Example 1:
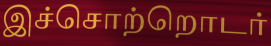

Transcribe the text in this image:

இச்சொற்றொடர்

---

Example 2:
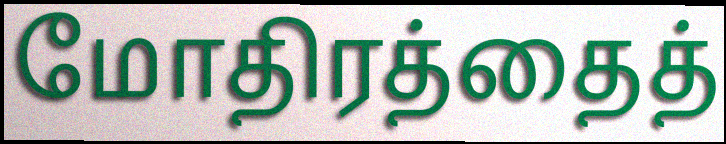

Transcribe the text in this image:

மோதிரத்தைத்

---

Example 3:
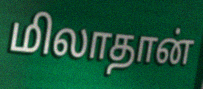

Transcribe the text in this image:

மிலாதான்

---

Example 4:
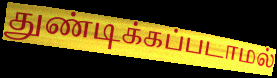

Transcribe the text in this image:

துண்டிக்கப்படாமல்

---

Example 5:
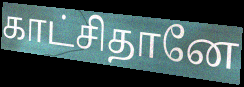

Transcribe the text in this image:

காட்சிதானே